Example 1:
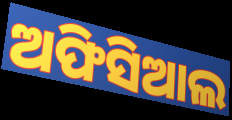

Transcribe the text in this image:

ଅଫିସିଆଲ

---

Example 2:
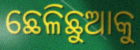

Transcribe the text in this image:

ଛେଳିଛୁଆକୁ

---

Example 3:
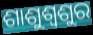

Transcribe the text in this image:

ଶାଶୁଶ୍ୱଶୁର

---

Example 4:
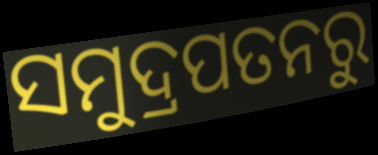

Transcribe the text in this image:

ସମୁଦ୍ରପତନରୁ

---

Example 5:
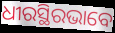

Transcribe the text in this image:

ଧୀରସ୍ଥିରଭାବେ